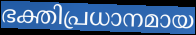
ഭക്തിപ്രധാനമായ